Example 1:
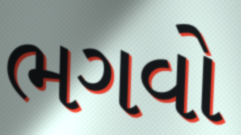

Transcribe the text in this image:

ભગવો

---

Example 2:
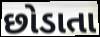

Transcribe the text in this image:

છોડાતા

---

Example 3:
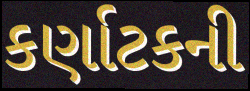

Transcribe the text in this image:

કર્ણાટકની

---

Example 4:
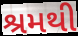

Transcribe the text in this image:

શ્રમથી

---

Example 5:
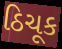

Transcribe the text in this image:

ઠિચૂક